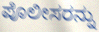
ಪೊಲೀಸರನ್ನು